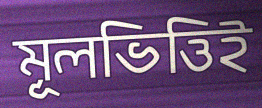
মূলভিত্তিই